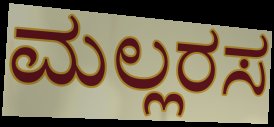
ಮಲ್ಲರಸ